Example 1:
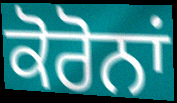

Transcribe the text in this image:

ਕੋਰੋਨਾਂ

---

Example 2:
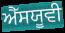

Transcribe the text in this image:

ਐੱਸਯੂਵੀ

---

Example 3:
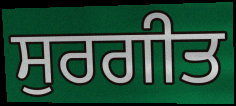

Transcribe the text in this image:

ਸੁਰਗੀਤ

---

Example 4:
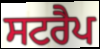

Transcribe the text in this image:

ਸਟਰੈਪ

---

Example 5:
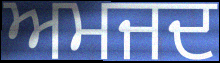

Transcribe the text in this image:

ਅਮਜਦ